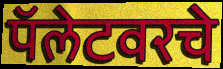
पॅलेटवरचे